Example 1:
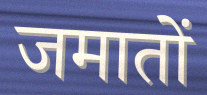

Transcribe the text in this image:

जमातों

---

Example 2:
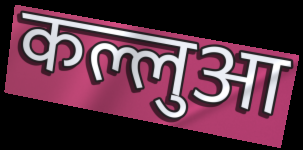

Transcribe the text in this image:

कल्लुआ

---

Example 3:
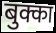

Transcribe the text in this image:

बुक्का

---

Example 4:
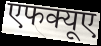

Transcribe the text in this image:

एफक्यूए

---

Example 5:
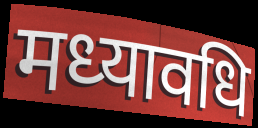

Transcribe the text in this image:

मध्‍यावधि